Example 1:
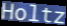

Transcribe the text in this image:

Holtz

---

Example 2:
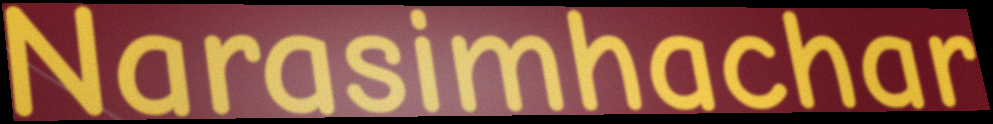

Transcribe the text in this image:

Narasimhachar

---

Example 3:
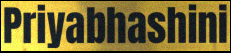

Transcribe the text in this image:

Priyabhashini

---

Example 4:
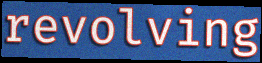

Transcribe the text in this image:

revolving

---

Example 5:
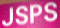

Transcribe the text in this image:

JSPS